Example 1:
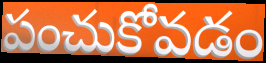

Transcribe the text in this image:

పంచుకోవడం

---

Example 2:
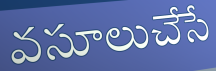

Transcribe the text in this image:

వసూలుచేసే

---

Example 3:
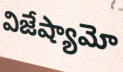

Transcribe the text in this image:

విజేష్యామో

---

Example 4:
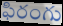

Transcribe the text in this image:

ఫిరంగు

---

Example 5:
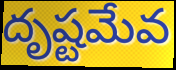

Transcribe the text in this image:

దృష్టమేవ